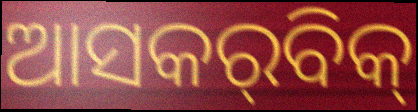
ଆସକର୍‌ବିକ୍